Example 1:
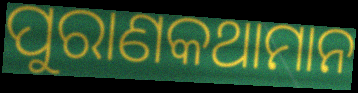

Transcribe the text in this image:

ପୁରାଣକଥାମାନ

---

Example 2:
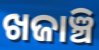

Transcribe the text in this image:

ଖଜାଞ୍ଚି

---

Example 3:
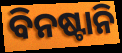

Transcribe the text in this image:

ବିନଷ୍ଟାନି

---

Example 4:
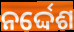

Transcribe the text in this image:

ନର୍ଦ୍ଦେଶ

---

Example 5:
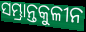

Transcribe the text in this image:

ସମ୍ଭ୍ରାନ୍ତକୁଳୀନ